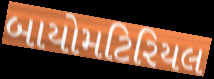
બાયોમટિરિયલ